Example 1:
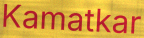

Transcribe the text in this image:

Kamatkar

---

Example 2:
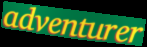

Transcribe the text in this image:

adventurer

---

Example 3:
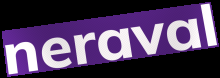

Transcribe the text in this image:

neraval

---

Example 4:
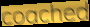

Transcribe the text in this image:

coached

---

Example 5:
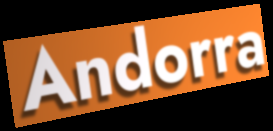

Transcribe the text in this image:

Andorra